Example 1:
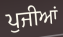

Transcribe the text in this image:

ਪੁਜੀਆਂ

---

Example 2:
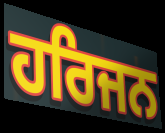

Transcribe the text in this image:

ਹਰਿਜਨ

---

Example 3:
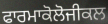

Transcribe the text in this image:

ਫਾਰਮਾਕੋਲੋਜੀਕਲ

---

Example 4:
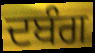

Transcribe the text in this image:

ਦਬੰਗ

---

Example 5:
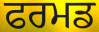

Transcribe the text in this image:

ਫਰਮਡ